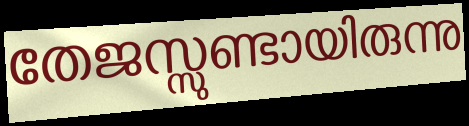
തേജസ്സുണ്ടായിരുന്നു